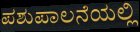
ಪಶುಪಾಲನೆಯಲ್ಲಿ